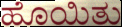
ಹೊಯಿತು